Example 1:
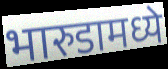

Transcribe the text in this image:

भारुडामध्ये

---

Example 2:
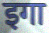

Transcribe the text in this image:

इगा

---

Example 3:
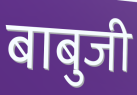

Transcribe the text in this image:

बाबुजी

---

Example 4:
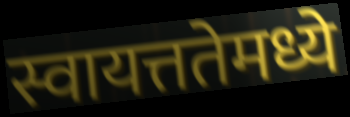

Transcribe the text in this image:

स्वायत्ततेमध्ये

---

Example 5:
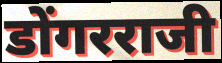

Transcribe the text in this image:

डोंगरराजी